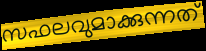
സഫലവുമാക്കുന്നത്